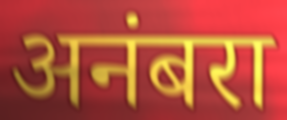
अनंबरा